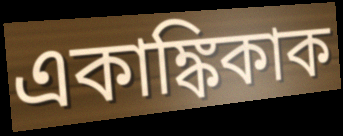
একাঙ্কিকাক